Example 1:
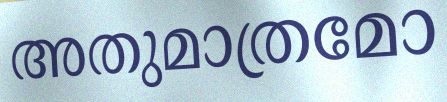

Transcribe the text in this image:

അതുമാത്രമോ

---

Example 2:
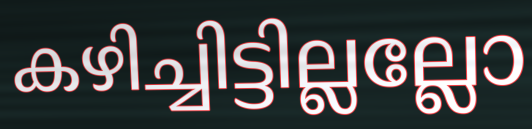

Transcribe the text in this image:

കഴിച്ചിട്ടില്ലല്ലോ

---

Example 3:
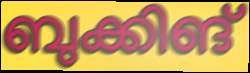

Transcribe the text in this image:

ബുക്കിങ്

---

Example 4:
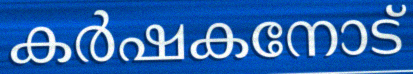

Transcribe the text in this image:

കർഷകനോട്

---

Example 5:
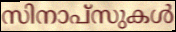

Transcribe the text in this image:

സിനാപ്സുകൾ